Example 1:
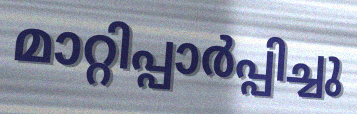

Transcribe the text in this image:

മാറ്റിപ്പാർപ്പിച്ചു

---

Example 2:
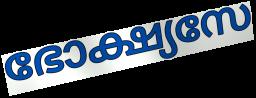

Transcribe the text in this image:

ഭോക്ഷ്യസേ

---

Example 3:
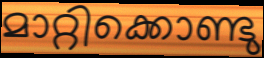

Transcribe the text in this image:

മാറ്റിക്കൊണ്ടു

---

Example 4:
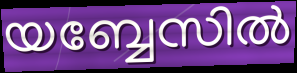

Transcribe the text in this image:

യബ്ബേസിൽ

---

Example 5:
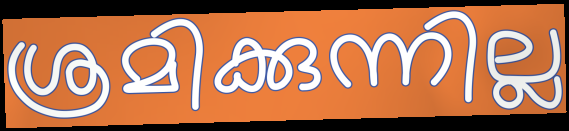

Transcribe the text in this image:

ശ്രമിക്കുന്നില്ല